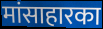
मांसाहारका